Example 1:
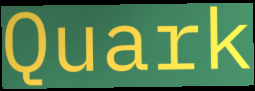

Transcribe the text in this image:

Quark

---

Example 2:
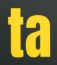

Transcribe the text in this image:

ta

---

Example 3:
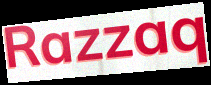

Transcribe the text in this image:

Razzaq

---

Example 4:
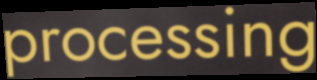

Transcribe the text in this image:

processing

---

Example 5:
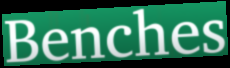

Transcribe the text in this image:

Benches